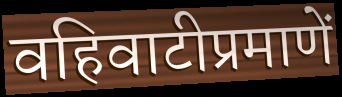
वहिवाटीप्रमाणें